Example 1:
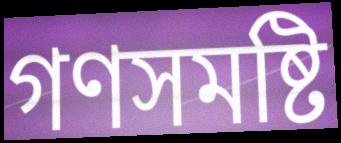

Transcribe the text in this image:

গণসমষ্টি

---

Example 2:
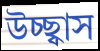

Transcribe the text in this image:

উচ্ছ্বাস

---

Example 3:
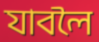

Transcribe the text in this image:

যাবলৈ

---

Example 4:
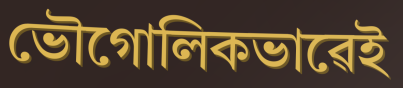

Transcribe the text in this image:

ভৌগোলিকভাৱেই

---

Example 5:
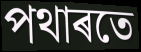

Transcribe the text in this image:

পথাৰতে